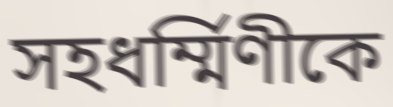
সহধর্ম্মিণীকে